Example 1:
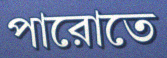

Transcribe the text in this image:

পারোতে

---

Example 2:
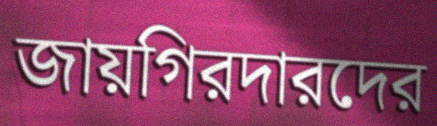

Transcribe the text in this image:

জায়গিরদারদের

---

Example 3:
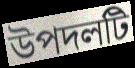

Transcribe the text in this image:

উপদলটি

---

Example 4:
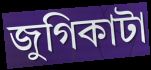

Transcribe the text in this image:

জুগিকাটা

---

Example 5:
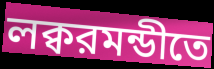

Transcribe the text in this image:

লক্বরমন্ডীতে